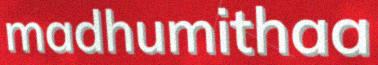
madhumithaa